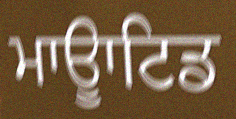
ਮਾਊਾਟਿਡ